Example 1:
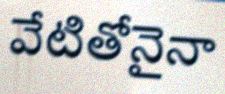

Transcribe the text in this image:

వేటితోనైనా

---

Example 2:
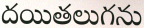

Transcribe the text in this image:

దయితలుగను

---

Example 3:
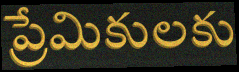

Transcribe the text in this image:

ప్రేమికులకు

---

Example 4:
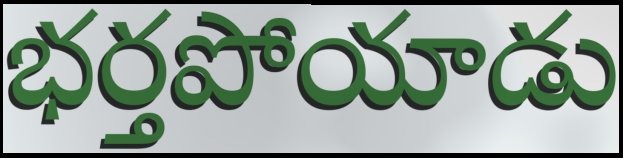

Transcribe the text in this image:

భర్తపోయాడు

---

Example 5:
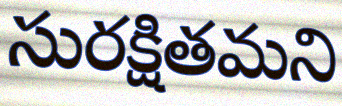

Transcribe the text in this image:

సురక్షితమని